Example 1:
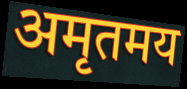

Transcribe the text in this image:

अमृतमय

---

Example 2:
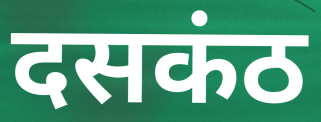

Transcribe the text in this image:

दसकंठ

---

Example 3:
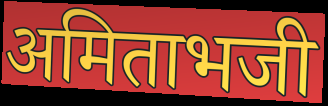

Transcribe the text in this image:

अमिताभजी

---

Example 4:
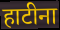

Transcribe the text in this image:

हाटीना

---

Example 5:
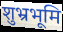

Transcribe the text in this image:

शुभ्रभूमि